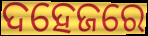
ଦହେଜରେ